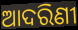
ଆଦରିଣୀ